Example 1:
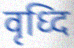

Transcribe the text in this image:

वृध्दि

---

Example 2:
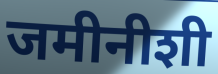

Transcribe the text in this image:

जमीनीशी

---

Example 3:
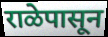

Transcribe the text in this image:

राळेपासून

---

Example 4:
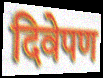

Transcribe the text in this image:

दिवेपण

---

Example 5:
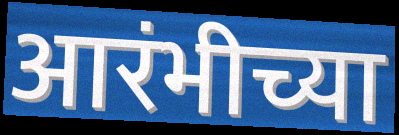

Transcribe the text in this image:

आरंभीच्या